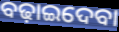
ବଢ଼ାଇଦେବା